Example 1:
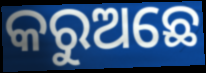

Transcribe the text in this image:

କରୁଅଛେ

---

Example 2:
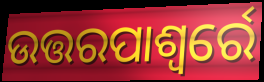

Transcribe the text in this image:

ଉତ୍ତରପାଶ୍ୱର୍ରେ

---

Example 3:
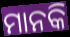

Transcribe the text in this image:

ମାନକି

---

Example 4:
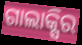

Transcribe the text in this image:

ଗାଲାକ୍ସିର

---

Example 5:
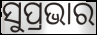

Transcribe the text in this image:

ସୁପ୍ରଭାର